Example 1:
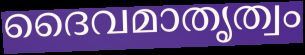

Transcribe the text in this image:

ദൈവമാതൃത്വം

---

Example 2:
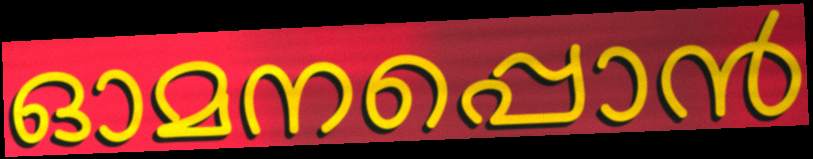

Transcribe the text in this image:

ഓമനപ്പൊൻ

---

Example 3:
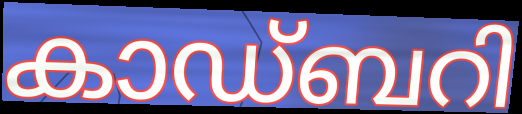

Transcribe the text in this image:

കാഡ്ബറി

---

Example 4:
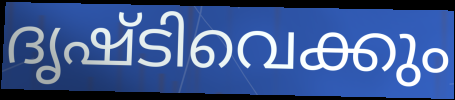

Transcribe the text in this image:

ദൃഷ്ടിവെക്കും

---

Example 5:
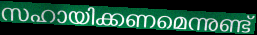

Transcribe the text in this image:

സഹായിക്കണമെന്നുണ്ട്